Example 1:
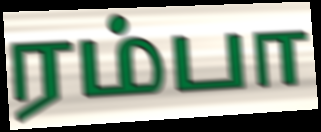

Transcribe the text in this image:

ரம்பா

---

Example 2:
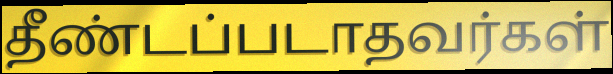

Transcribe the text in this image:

தீண்டப்படாதவர்கள்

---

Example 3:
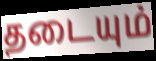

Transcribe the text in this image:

தடையும்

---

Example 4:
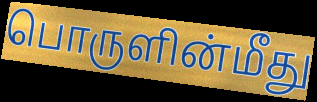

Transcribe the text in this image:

பொருளின்மீது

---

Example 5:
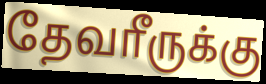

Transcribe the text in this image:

தேவரீருக்கு